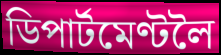
ডিপাৰ্টমেণ্টলৈ